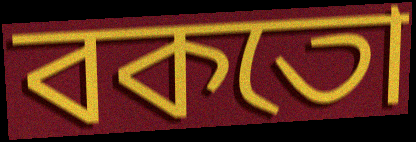
বকতো